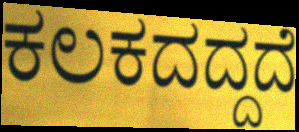
ಕಲಕದದ್ದದೆ